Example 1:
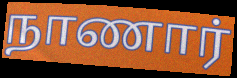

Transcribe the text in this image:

நாணார்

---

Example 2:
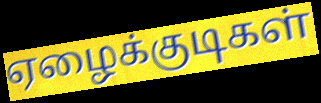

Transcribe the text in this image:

ஏழைக்குடிகள்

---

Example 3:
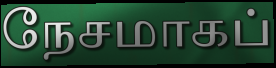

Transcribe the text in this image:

நேசமாகப்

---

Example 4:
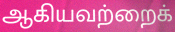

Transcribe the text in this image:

ஆகியவற்றைக்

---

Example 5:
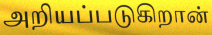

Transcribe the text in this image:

அறியப்படுகிறான்